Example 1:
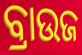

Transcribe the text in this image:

ବ୍ରାଉଜ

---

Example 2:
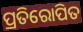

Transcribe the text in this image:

ପ୍ରତିରୋପିତ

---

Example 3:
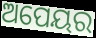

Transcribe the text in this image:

ଅପେୟର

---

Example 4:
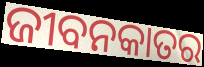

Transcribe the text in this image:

ଜୀବନକାତର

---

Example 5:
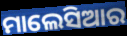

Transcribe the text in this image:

ମାଲେସିଆର